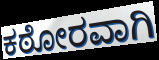
ಕಠೋರವಾಗಿ